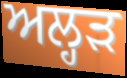
ਅਲ੍ਹੜ